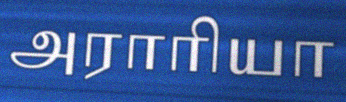
அராரியா